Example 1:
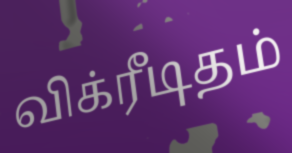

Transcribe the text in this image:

விக்ரீடிதம்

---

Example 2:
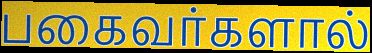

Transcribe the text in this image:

பகைவர்களால்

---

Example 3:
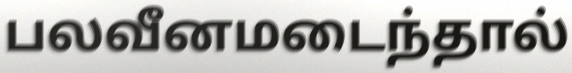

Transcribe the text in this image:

பலவீனமடைந்தால்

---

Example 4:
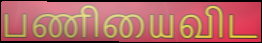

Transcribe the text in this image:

பணியைவிட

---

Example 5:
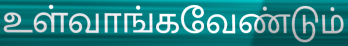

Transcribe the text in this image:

உள்வாங்கவேண்டும்